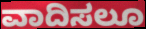
ವಾದಿಸಲೂ